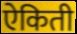
ऐकिती